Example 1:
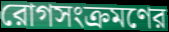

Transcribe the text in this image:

রোগসংক্রমণের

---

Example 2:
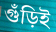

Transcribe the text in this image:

গুঁড়িই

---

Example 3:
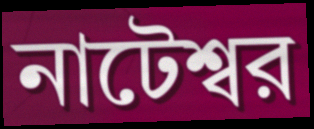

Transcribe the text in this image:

নাটেশ্বর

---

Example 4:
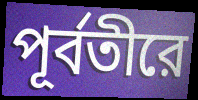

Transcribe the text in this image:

পূর্বতীরে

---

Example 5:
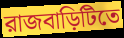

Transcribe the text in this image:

রাজবাড়িটিতে